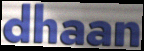
dhaan